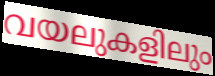
വയലുകളിലും